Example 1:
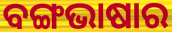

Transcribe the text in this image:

ବଙ୍ଗଭାଷାର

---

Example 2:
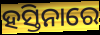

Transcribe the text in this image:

ହସ୍ତିନାରେ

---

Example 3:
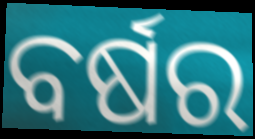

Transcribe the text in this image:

ବର୍ଷର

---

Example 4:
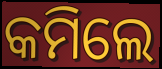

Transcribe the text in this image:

କମିଲେ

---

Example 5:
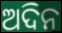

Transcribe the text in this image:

ଅଦିନ